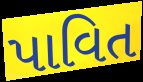
પાવિત